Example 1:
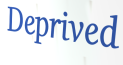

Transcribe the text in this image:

Deprived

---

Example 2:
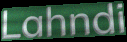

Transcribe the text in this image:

Lahndi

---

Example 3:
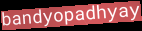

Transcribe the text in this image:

bandyopadhyay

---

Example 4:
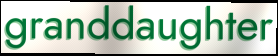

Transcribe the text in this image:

granddaughter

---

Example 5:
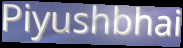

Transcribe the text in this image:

Piyushbhai